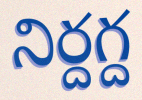
నిర్దగ్ద